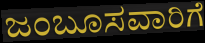
ಜಂಬೂಸವಾರಿಗೆ